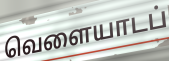
வெளையாடப்